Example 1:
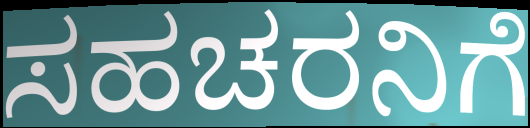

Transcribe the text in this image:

ಸಹಚರನಿಗೆ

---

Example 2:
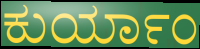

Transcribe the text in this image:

ಕುರ್ಯಾಂ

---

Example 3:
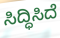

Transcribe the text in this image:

ಸಿದ್ಧಿಸಿದೆ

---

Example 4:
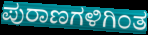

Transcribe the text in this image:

ಪುರಾಣಗಳಿಗಿಂತ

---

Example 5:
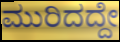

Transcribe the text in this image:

ಮುರಿದದ್ದೇ